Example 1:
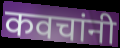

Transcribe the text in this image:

कवचांनी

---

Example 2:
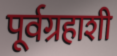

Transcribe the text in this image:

पूर्वग्रहाशी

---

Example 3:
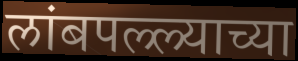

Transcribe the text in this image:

लांबपल्ल्याच्या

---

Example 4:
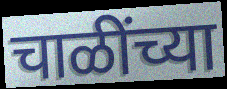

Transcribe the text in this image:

चाळींच्या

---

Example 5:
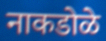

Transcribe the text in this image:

नाकडोळे